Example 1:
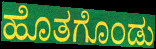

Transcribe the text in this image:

ಹೊತಗೊಂಡು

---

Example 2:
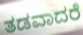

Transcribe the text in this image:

ತಡವಾದರೆ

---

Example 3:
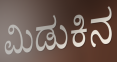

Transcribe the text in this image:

ಮಿಡುಕಿನ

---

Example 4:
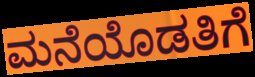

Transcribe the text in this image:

ಮನೆಯೊಡತಿಗೆ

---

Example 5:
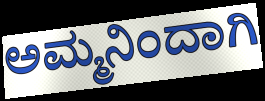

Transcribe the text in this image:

ಅಮ್ಮನಿಂದಾಗಿ